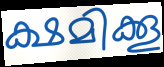
ക്ഷമിക്കൂ